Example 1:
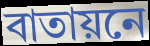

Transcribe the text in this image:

বাতায়নে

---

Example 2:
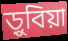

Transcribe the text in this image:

ড়ুবিয়া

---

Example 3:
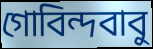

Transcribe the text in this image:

গোবিন্দবাবু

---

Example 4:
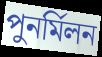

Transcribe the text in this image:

পুনর্মিলন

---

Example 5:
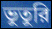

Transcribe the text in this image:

ভুতুরি